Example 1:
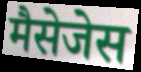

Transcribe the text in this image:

मैसेजेस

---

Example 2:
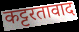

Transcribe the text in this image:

कट्टरतावाद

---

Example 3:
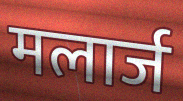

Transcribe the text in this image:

मलार्ज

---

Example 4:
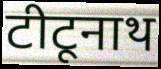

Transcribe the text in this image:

टीटूनाथ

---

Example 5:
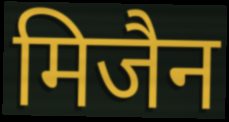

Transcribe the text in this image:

मिजैन